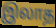
இலாத